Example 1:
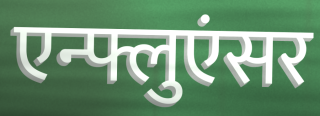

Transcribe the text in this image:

एन्फ्लुएंसर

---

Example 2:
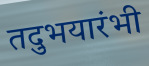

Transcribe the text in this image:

तदुभयारंभी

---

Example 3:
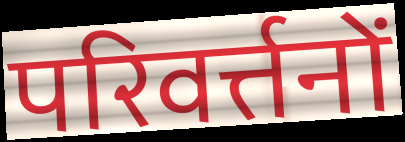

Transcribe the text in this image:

परिवर्त्तनों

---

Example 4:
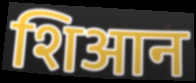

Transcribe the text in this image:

शिआन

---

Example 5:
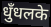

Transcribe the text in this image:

धुँधलके